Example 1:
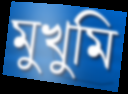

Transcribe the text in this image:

মুখুমি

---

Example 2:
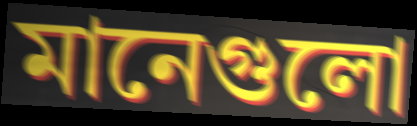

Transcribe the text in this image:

মানেগুলো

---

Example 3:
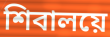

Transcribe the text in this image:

শিবালয়ে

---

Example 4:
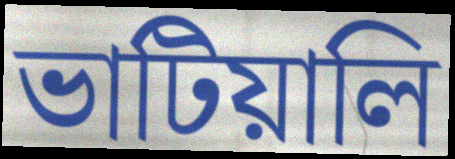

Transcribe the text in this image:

ভাটিয়ালি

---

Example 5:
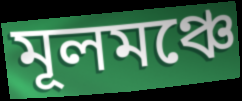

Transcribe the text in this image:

মূলমঞ্চে